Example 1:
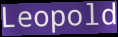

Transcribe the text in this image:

Leopold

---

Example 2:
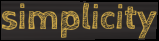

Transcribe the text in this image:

simplicity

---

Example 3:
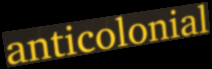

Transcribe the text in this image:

anticolonial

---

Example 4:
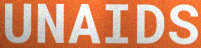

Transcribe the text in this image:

UNAIDS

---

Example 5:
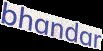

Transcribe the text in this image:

bhandar